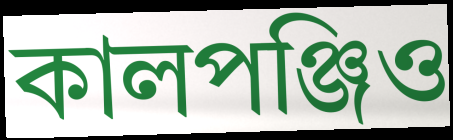
কালপঞ্জিও